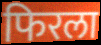
फिरला